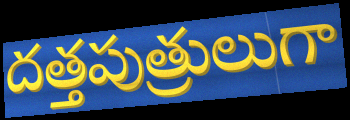
దత్తపుత్రులుగా